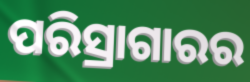
ପରିସ୍ରାଗାରର